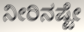
ನೀರಿನಷ್ಟೇ